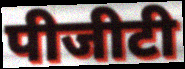
पीजीटी